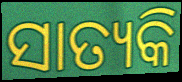
ସାତ୍ୟକି